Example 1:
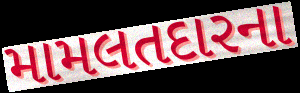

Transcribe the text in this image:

મામલતદારના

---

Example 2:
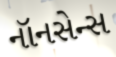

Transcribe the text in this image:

નૉનસેન્સ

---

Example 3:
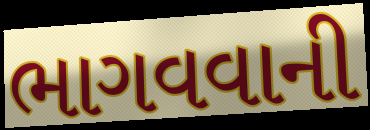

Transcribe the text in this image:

ભાગવવાની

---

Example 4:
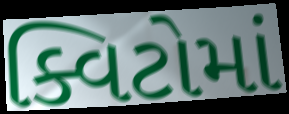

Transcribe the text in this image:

ક્વિટોમાં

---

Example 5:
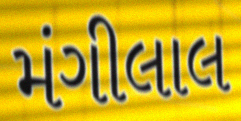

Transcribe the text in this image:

મંગીલાલ